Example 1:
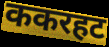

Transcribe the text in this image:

ककरहट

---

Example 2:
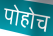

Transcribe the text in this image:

पोहोच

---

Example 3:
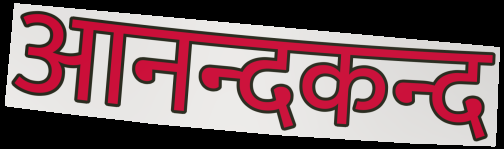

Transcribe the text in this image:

आनन्दकन्द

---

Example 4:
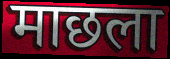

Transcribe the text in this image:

माछला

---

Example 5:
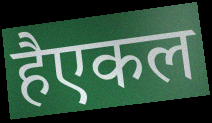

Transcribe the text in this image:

हैएकल